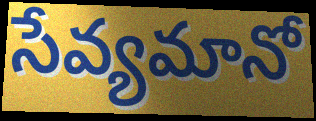
సేవ్యమానో